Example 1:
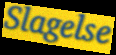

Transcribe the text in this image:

Slagelse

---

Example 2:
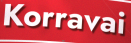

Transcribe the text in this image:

Korravai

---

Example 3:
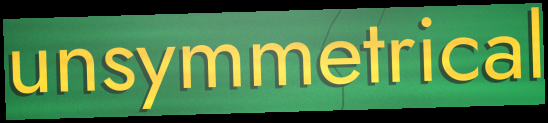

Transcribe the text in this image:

unsymmetrical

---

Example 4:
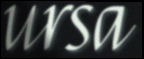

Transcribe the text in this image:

ursa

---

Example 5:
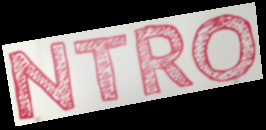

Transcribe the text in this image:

NTRO